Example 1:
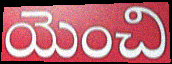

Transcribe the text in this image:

యెంచి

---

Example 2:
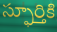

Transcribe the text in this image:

స్ఫూర్తికి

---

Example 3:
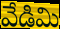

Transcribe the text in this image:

వేడిమి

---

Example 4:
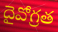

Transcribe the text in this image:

దైవోగ్రత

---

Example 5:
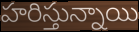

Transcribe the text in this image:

హరిస్తున్నాయి